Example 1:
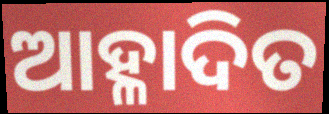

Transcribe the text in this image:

ଆହ୍ଳାଦିତ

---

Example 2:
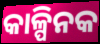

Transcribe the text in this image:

କାଳ୍ପିନକ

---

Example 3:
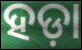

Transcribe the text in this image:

ହଡ଼ା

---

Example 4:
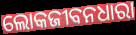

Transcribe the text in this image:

ଲୋକଜୀବନଧାରା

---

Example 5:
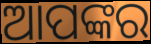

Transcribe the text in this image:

ଆପଙ୍କର